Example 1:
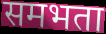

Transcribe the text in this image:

समभता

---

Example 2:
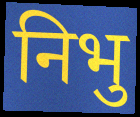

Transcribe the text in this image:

निभु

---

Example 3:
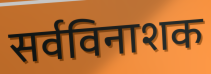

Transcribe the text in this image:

सर्वविनाशक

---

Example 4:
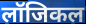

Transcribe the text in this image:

लॉजिकल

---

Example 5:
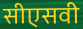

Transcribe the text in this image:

सीएसवी